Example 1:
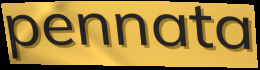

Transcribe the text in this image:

pennata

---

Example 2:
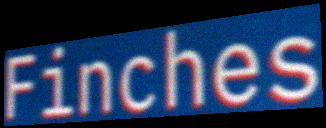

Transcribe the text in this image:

Finches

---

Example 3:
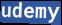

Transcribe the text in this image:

udemy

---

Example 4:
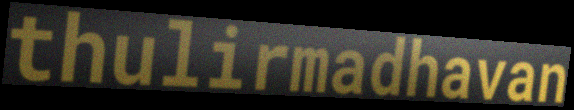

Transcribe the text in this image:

thulirmadhavan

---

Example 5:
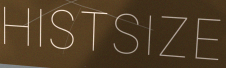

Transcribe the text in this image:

HISTSIZE